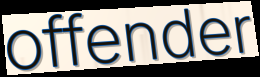
offender